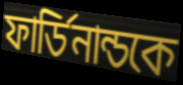
ফার্ডিনান্ডকে